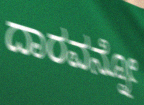
ದಾರವನ್ನೋ